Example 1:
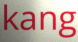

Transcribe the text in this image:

kang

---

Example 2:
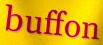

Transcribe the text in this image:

buffon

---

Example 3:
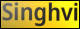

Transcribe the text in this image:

Singhvi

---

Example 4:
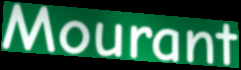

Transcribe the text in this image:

Mourant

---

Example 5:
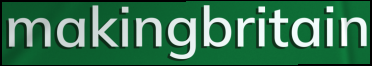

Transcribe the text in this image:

makingbritain